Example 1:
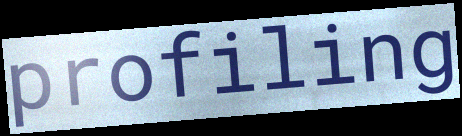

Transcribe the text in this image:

profiling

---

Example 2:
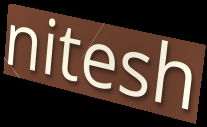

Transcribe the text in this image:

nitesh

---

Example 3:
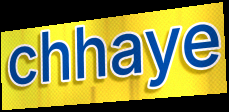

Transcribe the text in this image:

chhaye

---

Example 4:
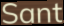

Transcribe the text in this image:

Sant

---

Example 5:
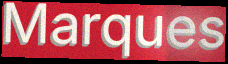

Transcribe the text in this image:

Marques